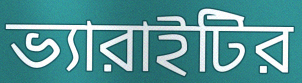
ভ্যারাইটির